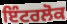
ਇੰਟਰਲੋਕ